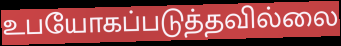
உபயோகப்படுத்தவில்லை